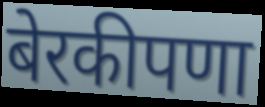
बेरकीपणा